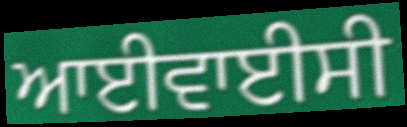
ਆਈਵਾਈਸੀ